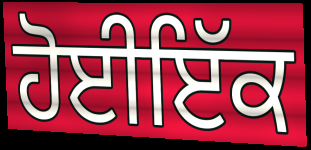
ਹੋਈਇੱਕ